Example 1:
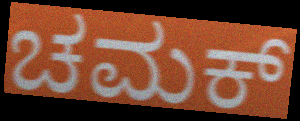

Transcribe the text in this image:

ಚಮಕ್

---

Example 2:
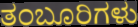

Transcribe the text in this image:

ತಂಬೂರಿಗಳು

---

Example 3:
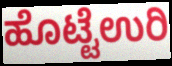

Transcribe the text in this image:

ಹೊಟ್ಟೆಉರಿ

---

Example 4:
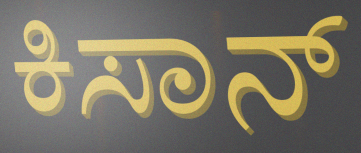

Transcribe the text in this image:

ಕಿಸಾನ್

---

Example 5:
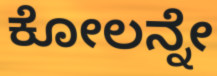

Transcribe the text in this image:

ಕೋಲನ್ನೇ